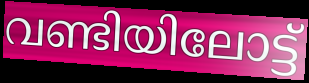
വണ്ടിയിലോട്ട്